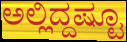
ಅಲ್ಲಿದ್ದಷ್ಟೂ